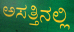
ಅಸತ್ತಿನಲ್ಲಿ